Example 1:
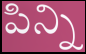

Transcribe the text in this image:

పిన్ని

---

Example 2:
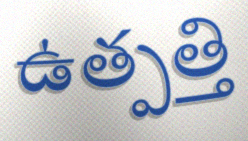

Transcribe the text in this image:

ఉత్పత్తి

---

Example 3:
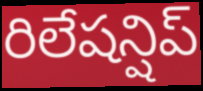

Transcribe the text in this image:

రిలేషన్షిప్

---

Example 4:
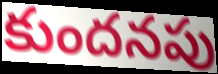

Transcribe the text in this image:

కుందనపు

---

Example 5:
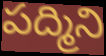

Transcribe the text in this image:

పద్మిని